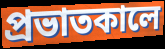
প্রভাতকালে